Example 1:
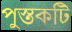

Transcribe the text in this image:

পুস্তকটি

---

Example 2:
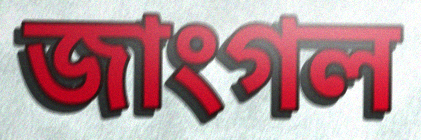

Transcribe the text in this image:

জাংগল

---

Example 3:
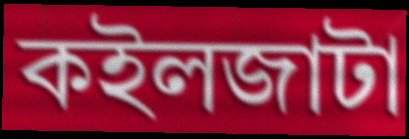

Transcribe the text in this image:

কইলজাটা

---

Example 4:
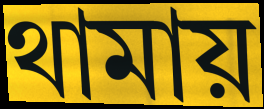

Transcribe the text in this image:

থামায়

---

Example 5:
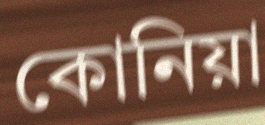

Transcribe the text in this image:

কোনিয়া